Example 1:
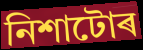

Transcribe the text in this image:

নিশাটোৰ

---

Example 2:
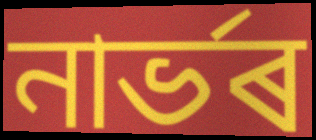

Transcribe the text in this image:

নাৰ্ভৰ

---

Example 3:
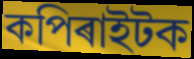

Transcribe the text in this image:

কপিৰাইটক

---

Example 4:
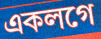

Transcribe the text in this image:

একলগে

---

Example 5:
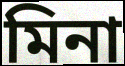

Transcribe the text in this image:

মিনা